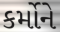
કર્મોને